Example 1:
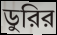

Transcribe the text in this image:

ডুরির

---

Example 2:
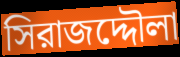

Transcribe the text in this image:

সিরাজদ্দৌলা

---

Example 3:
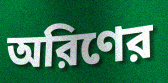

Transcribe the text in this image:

অরিণের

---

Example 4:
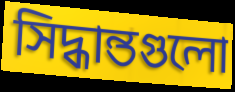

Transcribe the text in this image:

সিদ্ধান্তগুলো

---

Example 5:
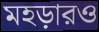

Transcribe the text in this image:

মহড়ারও